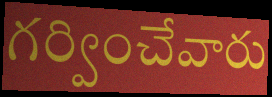
గర్వించేవారు